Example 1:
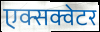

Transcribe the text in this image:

एक्सक्वेटर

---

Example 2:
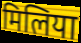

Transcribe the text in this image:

मिलिया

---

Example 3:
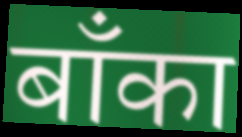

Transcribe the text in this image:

बाँका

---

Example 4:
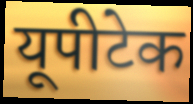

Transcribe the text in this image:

यूपीटेक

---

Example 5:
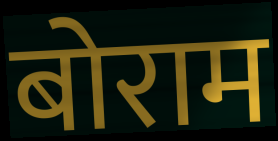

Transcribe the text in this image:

बोराम